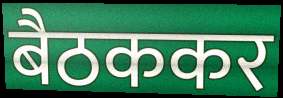
बैठककर